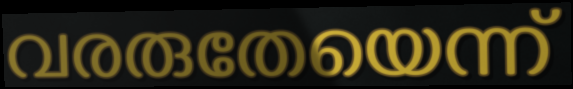
വരരുതേയെന്ന്